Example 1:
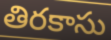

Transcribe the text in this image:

తిరకాసు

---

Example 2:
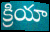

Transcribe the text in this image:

క్రియా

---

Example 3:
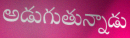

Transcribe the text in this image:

అడుగుతున్నాడు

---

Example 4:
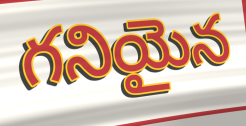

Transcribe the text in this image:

గనియైన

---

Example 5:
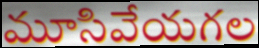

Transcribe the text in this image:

మూసివేయగల